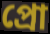
প্রো